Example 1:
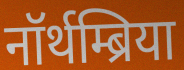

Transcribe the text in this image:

नॉर्थम्ब्रिया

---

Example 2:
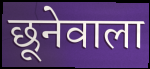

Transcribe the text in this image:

छूनेवाला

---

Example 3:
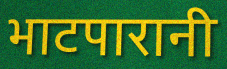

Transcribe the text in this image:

भाटपारानी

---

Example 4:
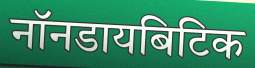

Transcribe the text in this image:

नॉनडायबिटिक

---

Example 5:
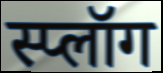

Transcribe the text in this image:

स्प्लॉग